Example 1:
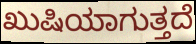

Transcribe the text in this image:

ಖುಷಿಯಾಗುತ್ತದೆ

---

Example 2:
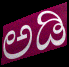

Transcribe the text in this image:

ಅಡಿ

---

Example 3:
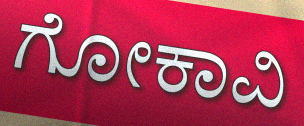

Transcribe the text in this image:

ಗೋಕಾವಿ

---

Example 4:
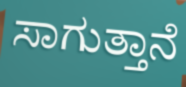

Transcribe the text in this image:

ಸಾಗುತ್ತಾನೆ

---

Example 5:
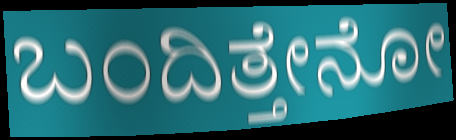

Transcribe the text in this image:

ಬಂದಿತ್ತೇನೋ